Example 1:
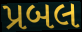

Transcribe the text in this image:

પ્રબલ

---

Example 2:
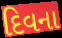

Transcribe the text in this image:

દિવના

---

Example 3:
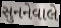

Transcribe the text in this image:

સુનનેવાલે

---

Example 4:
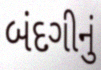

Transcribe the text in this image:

બંદગીનું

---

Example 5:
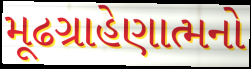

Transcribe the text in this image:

મૂઢગ્રાહેણાત્મનો